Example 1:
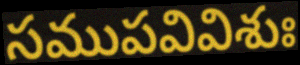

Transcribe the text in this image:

సముపవివిశుః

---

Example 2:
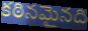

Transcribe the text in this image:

కఠినమైనది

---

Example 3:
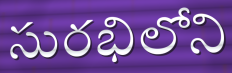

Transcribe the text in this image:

సురభిలోని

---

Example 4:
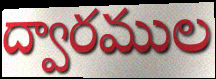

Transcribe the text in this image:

ద్వారముల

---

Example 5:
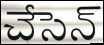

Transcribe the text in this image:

చేసెన్